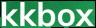
kkbox